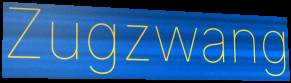
Zugzwang